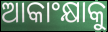
ଆକାଂକ୍ଷାକୁ